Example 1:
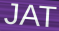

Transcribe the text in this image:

JAT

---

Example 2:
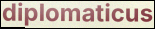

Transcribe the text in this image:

diplomaticus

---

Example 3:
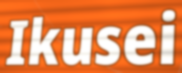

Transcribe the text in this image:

Ikusei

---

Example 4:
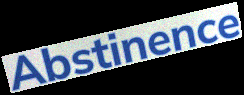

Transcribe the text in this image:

Abstinence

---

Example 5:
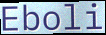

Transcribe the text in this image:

Eboli